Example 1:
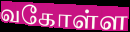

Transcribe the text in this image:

வகோள்ள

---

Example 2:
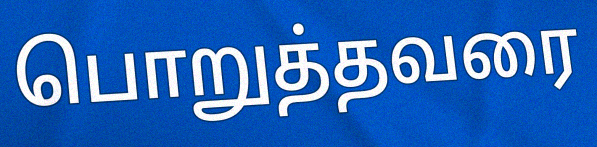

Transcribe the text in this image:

பொறுத்தவரை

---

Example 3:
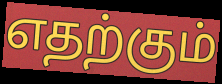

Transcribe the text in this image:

எதற்கும்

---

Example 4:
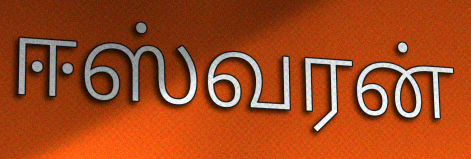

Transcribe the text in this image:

ஈஸ்வரன்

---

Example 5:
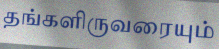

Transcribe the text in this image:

தங்களிருவரையும்